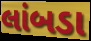
લાંબડા